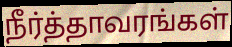
நீர்த்தாவரங்கள்